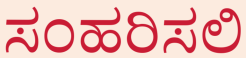
ಸಂಹರಿಸಲಿ